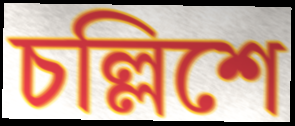
চল্লিশে